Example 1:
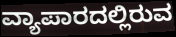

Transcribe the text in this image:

ವ್ಯಾಪಾರದಲ್ಲಿರುವ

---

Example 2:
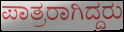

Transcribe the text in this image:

ಪಾತ್ರರಾಗಿದ್ದರು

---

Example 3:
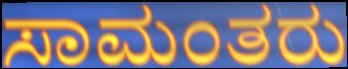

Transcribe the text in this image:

ಸಾಮಂತರು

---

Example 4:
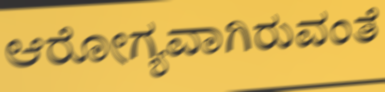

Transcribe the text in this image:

ಆರೋಗ್ಯವಾಗಿರುವಂತೆ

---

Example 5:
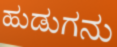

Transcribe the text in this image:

ಹುಡುಗನು